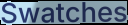
Swatches